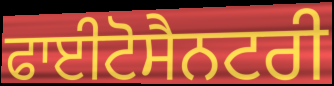
ਫਾਈਟੋਸੈਨਟਰੀ